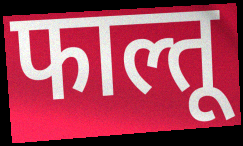
फाल्तू